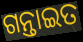
ଗନ୍ତାଇତ